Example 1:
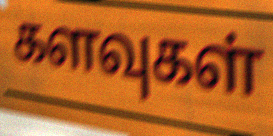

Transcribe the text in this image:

களவுகள்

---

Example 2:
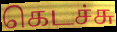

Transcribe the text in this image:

கெடச்சு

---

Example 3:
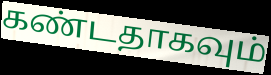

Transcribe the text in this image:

கண்டதாகவும்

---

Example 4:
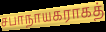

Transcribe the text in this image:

சபாநாயகராகத்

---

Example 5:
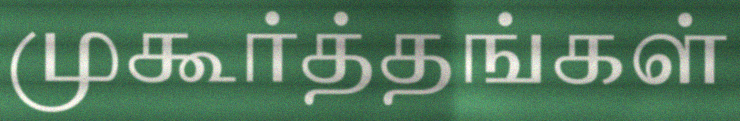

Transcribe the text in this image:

முகூர்த்தங்கள்